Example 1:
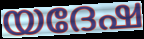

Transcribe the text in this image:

യദേഷ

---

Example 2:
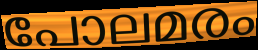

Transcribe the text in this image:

പോലമരം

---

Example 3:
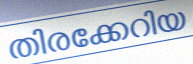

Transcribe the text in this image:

തിരക്കേറിയ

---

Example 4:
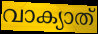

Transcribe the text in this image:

വാക്യാത്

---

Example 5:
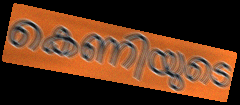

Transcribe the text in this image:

കെണിയുടെ